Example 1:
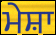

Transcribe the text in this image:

ਮੇਸ਼ਾ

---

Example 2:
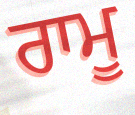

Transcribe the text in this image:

ਰਾਮੂ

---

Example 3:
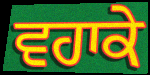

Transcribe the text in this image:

ਵਹਾਕੇ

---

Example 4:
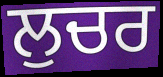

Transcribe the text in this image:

ਲੁਚਰ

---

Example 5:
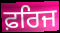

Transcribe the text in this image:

ਫ਼ਰਿਜ